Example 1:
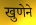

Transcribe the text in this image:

खुणेने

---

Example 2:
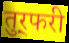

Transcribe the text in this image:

तुर्फरी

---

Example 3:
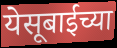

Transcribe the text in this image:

येसूबाईच्या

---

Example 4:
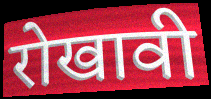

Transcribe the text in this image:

रोखावी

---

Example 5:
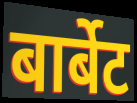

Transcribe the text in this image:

बार्बेट